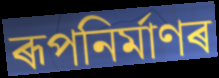
ৰূপনিৰ্মাণৰ